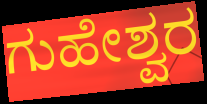
ಗುಹೇಶ್ವರ